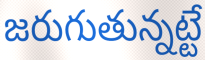
జరుగుతున్నట్టే